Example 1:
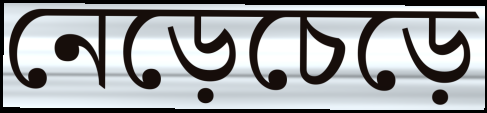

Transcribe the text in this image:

নেড়েচেড়ে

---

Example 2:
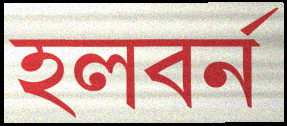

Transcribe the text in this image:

হলবর্ন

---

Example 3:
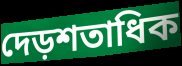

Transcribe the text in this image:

দেড়শতাধিক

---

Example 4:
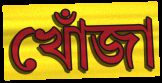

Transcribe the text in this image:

খোঁজা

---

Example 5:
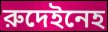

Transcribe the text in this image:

রুদেইনেহ